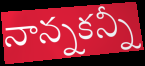
నాన్నకన్నీ